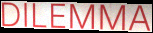
DILEMMA